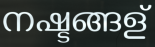
നഷ്ടങ്ങള്